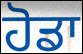
ਹੋਡਾ